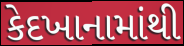
કેદખાનામાંથી